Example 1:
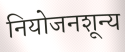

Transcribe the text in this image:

नियोजनशून्य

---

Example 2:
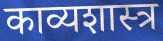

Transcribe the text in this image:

काव्यशास्त्र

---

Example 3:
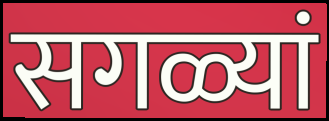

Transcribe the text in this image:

सगळ्यां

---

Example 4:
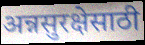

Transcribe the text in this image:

अन्नसुरक्षेसाठी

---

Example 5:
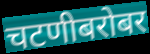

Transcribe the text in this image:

चटणीबरोबर